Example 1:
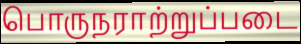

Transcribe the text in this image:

பொருநராற்றுப்படை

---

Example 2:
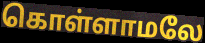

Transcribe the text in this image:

கொள்ளாமலே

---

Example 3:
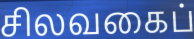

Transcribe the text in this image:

சிலவகைப்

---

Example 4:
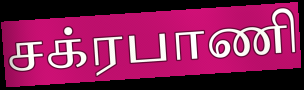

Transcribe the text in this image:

சக்ரபாணி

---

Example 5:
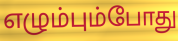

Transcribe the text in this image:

எழும்பும்போது